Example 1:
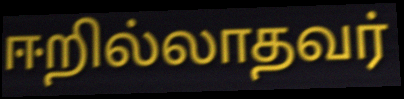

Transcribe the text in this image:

ஈறில்லாதவர்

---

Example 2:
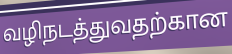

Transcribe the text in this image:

வழிநடத்துவதற்கான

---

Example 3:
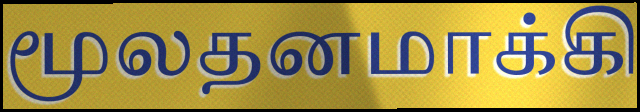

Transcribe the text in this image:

மூலதனமாக்கி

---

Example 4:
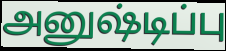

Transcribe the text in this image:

அனுஷ்டிப்பு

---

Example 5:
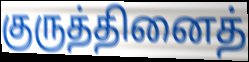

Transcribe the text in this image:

குருத்தினைத்